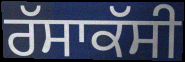
ਰੱਸਾਕੱਸੀ